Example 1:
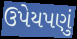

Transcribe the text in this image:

ઉપેયપણું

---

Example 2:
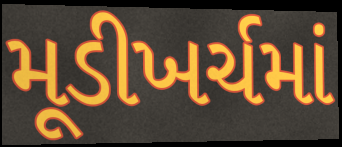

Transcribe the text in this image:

મૂડીખર્ચમાં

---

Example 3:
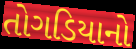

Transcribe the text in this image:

તોગડિયાનો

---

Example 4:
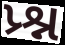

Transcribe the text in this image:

પ્ર્શ્ન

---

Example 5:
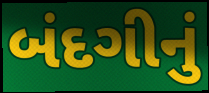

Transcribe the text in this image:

બંદગીનું